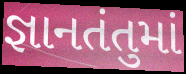
જ્ઞાનતંતુમાં